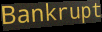
Bankrupt